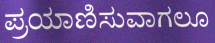
ಪ್ರಯಾಣಿಸುವಾಗಲೂ